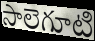
సాలెగూటి